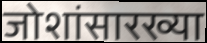
जोशांसारख्या